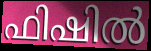
ഫിഷിൽ